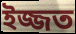
ইজ্জত